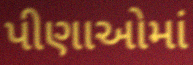
પીણાઓમાં